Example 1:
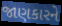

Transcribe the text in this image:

જાણકારને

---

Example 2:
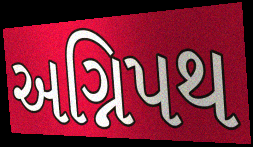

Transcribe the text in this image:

અગ્નિપથ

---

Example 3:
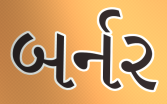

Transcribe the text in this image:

બર્નર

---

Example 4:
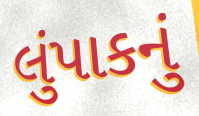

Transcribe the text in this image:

લુંપાકનું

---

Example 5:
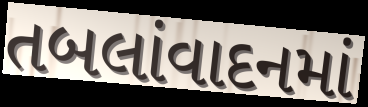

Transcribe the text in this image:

તબલાંવાદનમાં